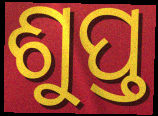
ଶୁପ୍ତ